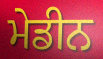
ਮੇਡੀਨ